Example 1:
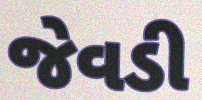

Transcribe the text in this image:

જેવડી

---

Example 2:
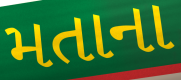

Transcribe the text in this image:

મતાના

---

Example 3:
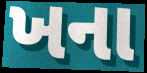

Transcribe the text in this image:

ખના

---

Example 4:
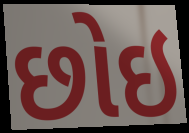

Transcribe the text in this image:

છોઇ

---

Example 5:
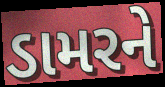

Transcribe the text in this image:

ડામરને